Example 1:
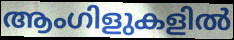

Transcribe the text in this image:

ആംഗിളുകളിൽ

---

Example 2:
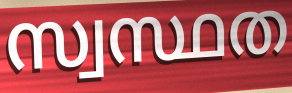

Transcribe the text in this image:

സ്വസ്ഥത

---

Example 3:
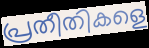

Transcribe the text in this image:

പ്രതീതികളെ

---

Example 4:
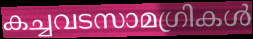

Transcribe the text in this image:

കച്ചവടസാമഗ്രികൾ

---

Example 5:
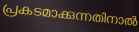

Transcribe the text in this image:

പ്രകടമാക്കുന്നതിനാൽ